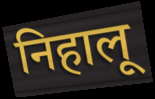
निहालू